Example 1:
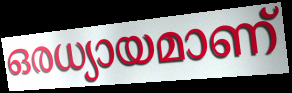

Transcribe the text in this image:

ഒരധ്യായമാണ്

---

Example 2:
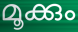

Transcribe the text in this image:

മൂക്കും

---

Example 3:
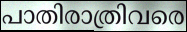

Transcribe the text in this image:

പാതിരാത്രിവരെ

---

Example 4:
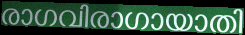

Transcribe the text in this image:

രാഗവിരാഗായാതി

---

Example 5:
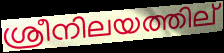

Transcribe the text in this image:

ശ്രീനിലയത്തില്